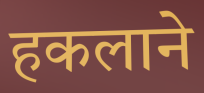
हकलाने